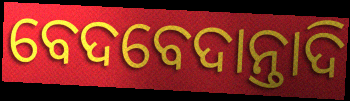
ବେଦବେଦାନ୍ତାଦି